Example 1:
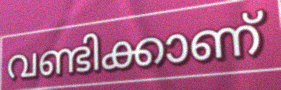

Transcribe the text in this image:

വണ്ടിക്കാണ്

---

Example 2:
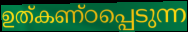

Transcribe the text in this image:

ഉത്കണ്ഠപ്പെടുന്ന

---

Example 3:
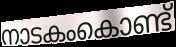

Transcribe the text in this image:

നാടകംകൊണ്ട്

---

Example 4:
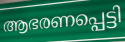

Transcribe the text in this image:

ആഭരണപ്പെട്ടി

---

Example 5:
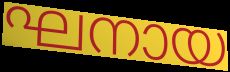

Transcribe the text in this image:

ഘനായ